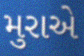
મુરાએ